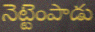
నెట్టెంపాడు